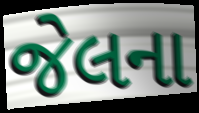
જેલના